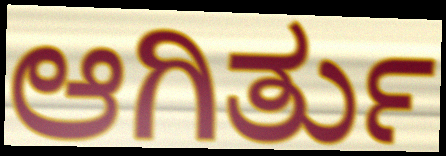
ಆಗಿರ್ತು